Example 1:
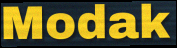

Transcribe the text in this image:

Modak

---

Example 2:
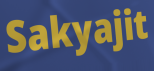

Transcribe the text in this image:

Sakyajit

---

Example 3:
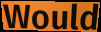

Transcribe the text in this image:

Would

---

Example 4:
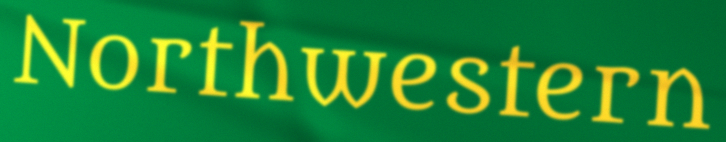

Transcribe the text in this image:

Northwestern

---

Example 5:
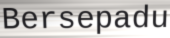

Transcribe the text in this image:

Bersepadu